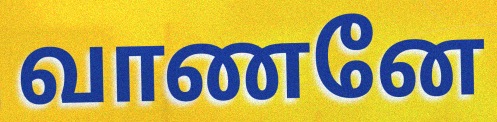
வாணனே